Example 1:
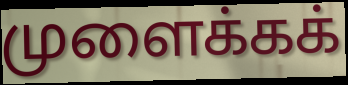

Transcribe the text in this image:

முளைக்கக்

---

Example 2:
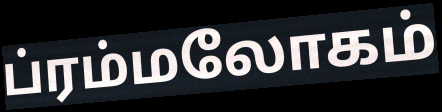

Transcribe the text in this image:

ப்ரம்மலோகம்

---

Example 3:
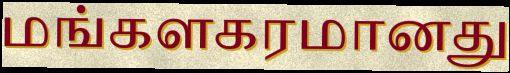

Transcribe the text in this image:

மங்களகரமானது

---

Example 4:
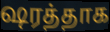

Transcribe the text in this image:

ஷரத்தாக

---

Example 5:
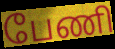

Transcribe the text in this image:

பேணி